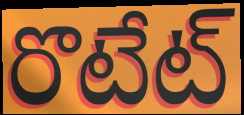
రొటేట్